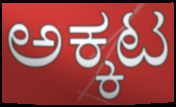
ಅಕ್ಕಟ